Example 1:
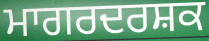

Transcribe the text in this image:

ਮਾਗਰਦਰਸ਼ਕ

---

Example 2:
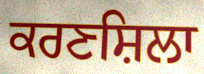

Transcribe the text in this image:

ਕਰਣਸ਼ਿਲਾ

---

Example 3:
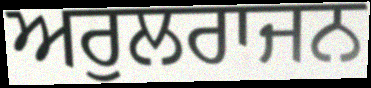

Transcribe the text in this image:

ਅਰੁਲਰਾਜਨ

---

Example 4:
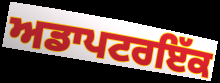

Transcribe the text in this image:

ਅਡਾਪਟਰਇੱਕ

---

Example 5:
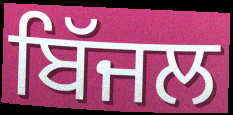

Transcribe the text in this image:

ਬਿੱਜਲ